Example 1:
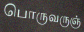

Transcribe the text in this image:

பொருவருஞ்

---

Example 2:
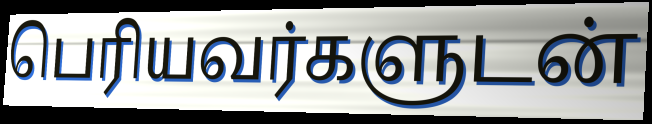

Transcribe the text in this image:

பெரியவர்களுடன்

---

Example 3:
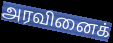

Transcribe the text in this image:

அரவினைக்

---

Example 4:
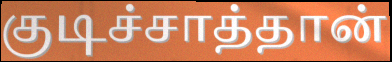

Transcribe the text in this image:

குடிச்சாத்தான்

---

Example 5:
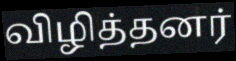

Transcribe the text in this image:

விழித்தனர்